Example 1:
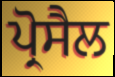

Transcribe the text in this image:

ਪ੍ਰੋਸੈਲ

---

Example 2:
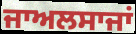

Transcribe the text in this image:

ਜਾਅਲਸਾਜਾਂ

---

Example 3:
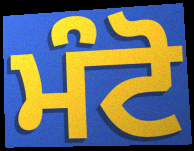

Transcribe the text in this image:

ਮੰਟੋ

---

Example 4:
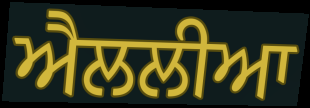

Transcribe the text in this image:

ਐਲਲੀਆ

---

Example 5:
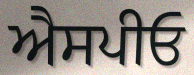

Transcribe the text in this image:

ਐਸਪੀਓ